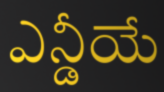
ఎన్డీయే